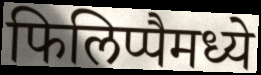
फिलिप्पैमध्ये